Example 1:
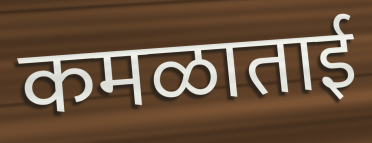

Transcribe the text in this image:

कमळाताई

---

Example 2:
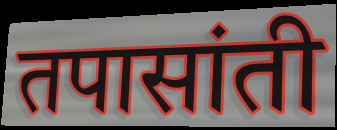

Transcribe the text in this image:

तपासांती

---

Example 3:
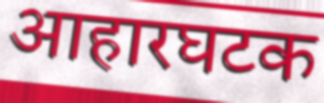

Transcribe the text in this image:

आहारघटक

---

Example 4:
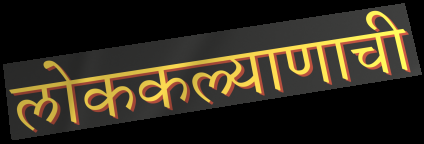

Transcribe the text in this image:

लोककल्याणाची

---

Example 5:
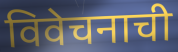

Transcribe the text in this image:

विवेचनाची